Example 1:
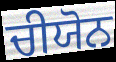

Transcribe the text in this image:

ਚੀਯੋਨ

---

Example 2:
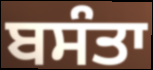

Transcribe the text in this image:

ਬਸੰਤਾ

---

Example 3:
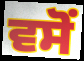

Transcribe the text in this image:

ਵਸੋਂ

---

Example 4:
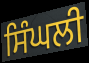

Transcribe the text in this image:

ਸਿੰਘਲੀ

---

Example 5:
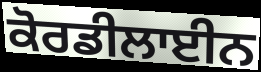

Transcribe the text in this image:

ਕੋਰਡੀਲਾਈਨ